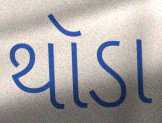
થૉડા